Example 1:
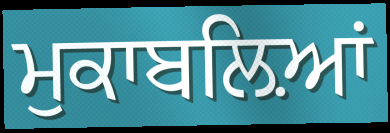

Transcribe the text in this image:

ਮੁਕਾਬਲ਼ਿਆਂ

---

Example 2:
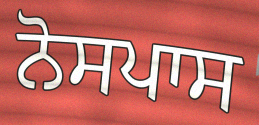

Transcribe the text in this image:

ਨੋਸਪਾਸ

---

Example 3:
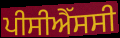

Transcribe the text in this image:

ਪੀਸੀਐੱਸਸੀ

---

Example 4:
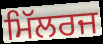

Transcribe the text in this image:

ਮਿੱਲਰਜ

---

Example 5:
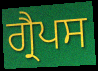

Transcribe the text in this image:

ਗ੍ਰੈਪਸ